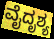
ವೈದೃಶ್ಯ